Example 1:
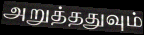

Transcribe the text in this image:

அறுத்ததுவும்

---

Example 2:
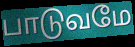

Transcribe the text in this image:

பாடுவமே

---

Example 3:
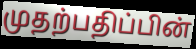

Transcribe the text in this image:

முதற்பதிப்பின்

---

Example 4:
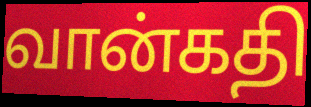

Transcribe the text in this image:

வான்கதி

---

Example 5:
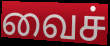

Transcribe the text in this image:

வைச்